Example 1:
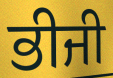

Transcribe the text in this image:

ਭੀਜੀ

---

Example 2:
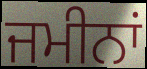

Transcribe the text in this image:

ਜਮੀਨਾਂ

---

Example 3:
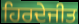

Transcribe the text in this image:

ਹਿਰਦੇਜੀਤ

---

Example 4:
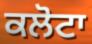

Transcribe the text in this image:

ਕਲੋਟਾ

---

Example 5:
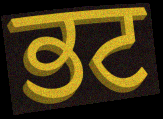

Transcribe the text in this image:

ਭਟ